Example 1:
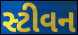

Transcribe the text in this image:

સ્ટીવન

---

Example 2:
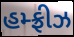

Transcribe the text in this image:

હમ્ફ્રીઝ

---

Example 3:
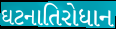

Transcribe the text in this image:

ઘટનાતિરોધાન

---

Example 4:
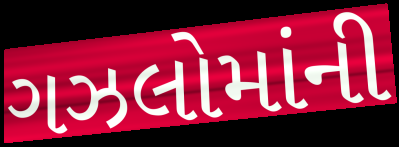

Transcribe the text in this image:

ગઝલોમાંની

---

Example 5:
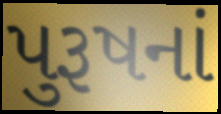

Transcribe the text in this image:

પુરૂષનાં